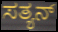
ಸತ್ಯನ್